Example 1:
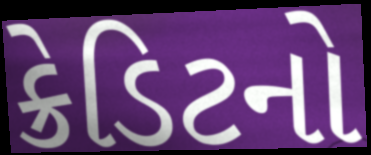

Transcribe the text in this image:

ક્રેડિટનો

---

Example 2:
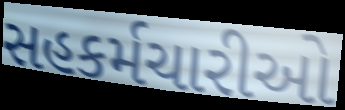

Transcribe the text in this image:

સહકર્મચારીઓ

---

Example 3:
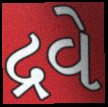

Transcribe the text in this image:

દ્રવે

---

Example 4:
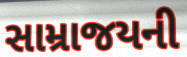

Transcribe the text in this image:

સામ્રાજયની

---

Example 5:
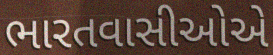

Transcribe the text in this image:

ભારતવાસીઓએ